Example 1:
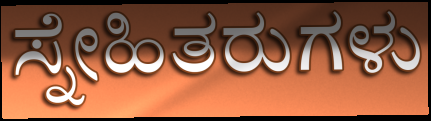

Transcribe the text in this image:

ಸ್ನೇಹಿತರುಗಳು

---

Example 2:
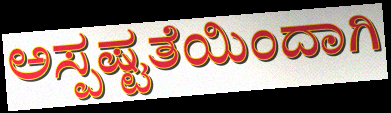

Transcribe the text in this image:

ಅಸ್ಪಷ್ಟತೆಯಿಂದಾಗಿ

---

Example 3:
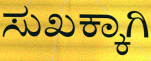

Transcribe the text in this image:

ಸುಖಕ್ಕಾಗಿ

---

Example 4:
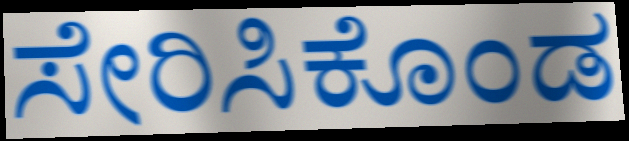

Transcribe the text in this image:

ಸೇರಿಸಿಕೊಂಡ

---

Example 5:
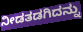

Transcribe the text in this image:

ನೀಡತಡಗಿದನ್ನು